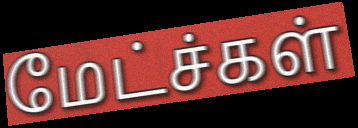
மேட்ச்கள்